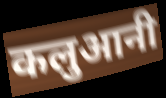
कलुआनी